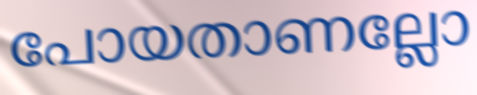
പോയതാണല്ലോ